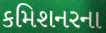
કમિશનરના